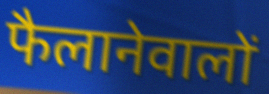
फैलानेवालों